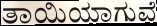
ತಾಯಿಯಾಗುವೆ